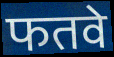
फतवे